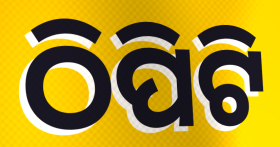
ଠିପିଟି